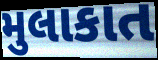
મુલાકાત